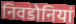
निवडोनियां